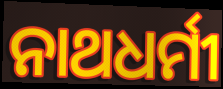
ନାଥଧର୍ମୀ